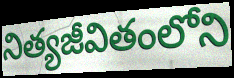
నిత్యజీవితంలోని